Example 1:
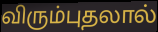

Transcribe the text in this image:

விரும்புதலால்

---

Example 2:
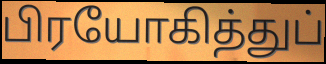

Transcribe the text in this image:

பிரயோகித்துப்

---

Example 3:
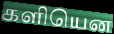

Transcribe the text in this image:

களியென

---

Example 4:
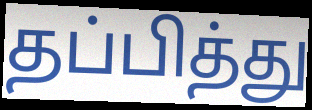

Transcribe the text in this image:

தப்பித்து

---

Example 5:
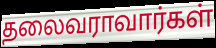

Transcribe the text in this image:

தலைவராவார்கள்